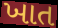
ખાત